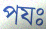
পযঃ